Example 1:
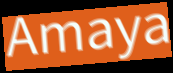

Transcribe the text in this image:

Amaya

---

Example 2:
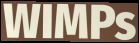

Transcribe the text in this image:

WIMPs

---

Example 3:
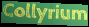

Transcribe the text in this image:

Collyrium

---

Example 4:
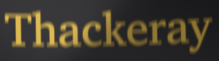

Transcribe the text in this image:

Thackeray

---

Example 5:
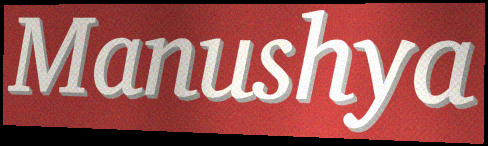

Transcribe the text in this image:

Manushya